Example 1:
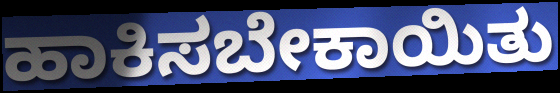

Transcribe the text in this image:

ಹಾಕಿಸಬೇಕಾಯಿತು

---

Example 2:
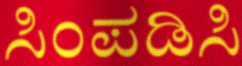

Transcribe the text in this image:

ಸಿಂಪಡಿಸಿ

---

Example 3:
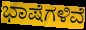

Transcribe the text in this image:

ಭಾಷೆಗಳಿವೆ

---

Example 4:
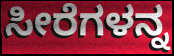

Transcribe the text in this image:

ಸೀರೆಗಳನ್ನ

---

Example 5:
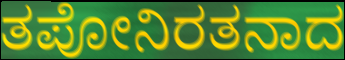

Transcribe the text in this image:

ತಪೋನಿರತನಾದ